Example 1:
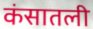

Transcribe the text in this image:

कंसातली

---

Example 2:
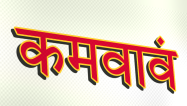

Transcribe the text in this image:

कमवावं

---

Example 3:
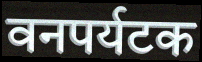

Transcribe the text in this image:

वनपर्यटक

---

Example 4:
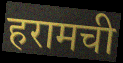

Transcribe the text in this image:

हरामची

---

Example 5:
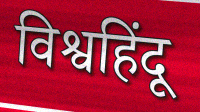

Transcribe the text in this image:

विश्वहिंदू